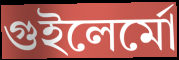
গুইলের্মো